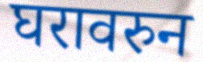
घरावरुन